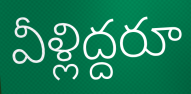
వీళ్లిద్దరూ